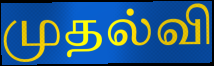
முதல்வி